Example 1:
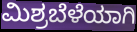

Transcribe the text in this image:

ಮಿಶ್ರಬೆಳೆಯಾಗಿ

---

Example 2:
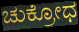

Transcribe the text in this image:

ಚುಕ್ರೋಧ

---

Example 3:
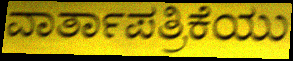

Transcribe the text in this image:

ವಾರ್ತಾಪತ್ರಿಕೆಯು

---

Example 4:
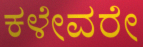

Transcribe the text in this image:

ಕಳೇವರೇ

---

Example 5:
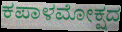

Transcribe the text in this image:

ಕಪಾಳಮೋಕ್ಷದ